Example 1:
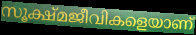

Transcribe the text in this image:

സൂക്ഷ്മജീവികളെയാണ്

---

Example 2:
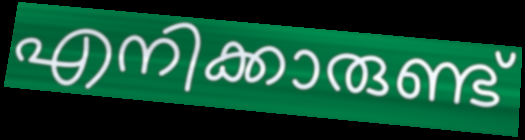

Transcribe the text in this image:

എനിക്കാരുണ്ട്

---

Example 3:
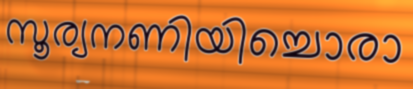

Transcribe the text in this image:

സൂര്യനണിയിച്ചൊരാ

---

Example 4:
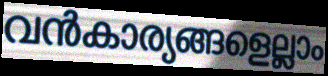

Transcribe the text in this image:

വൻകാര്യങ്ങളെല്ലാം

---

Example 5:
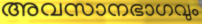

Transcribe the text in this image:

അവസാനഭാഗവും